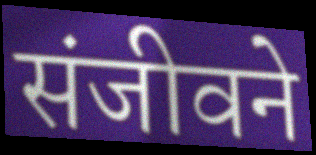
संजीवने